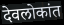
देवलोकांत